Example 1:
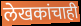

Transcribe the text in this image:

लेखकांचाही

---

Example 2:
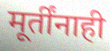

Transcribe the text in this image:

मूर्तींनाही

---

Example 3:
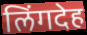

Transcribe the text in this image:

लिंगदेह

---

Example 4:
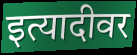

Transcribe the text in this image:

इत्यादीवर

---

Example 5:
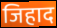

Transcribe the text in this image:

जिहाद